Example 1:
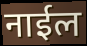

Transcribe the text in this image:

नाईल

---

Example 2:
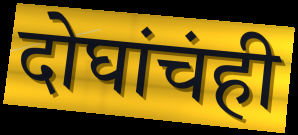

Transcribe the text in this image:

दोघांचंही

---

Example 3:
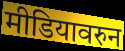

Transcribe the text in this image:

मीडियावरुन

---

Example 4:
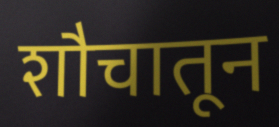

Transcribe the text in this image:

शौचातून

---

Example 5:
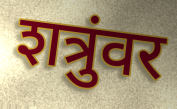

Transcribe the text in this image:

शत्रुंवर